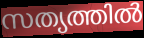
സത്യത്തിൽ